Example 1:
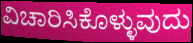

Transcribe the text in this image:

ವಿಚಾರಿಸಿಕೊಳ್ಳುವುದು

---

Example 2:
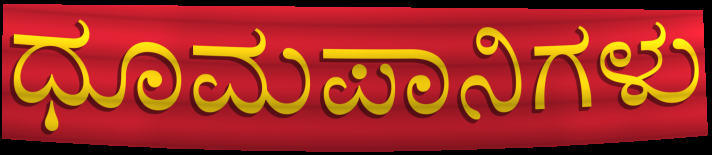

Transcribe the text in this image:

ಧೂಮಪಾನಿಗಳು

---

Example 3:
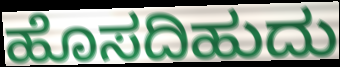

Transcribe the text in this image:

ಹೊಸದಿಹುದು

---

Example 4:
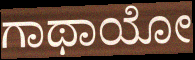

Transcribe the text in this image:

ಗಾಥಾಯೋ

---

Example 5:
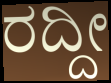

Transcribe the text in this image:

ರದ್ದೀ